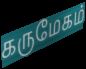
கருமேகம்